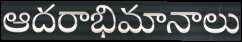
ఆదరాభిమానాలు